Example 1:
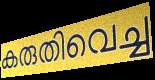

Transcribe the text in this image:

കരുതിവെച്ച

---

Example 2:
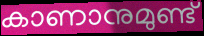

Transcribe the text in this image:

കാണാനുമുണ്ട്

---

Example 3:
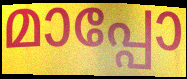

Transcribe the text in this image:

മാപ്പോ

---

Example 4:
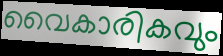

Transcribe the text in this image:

വൈകാരികവും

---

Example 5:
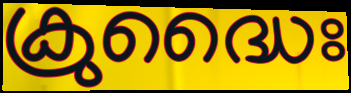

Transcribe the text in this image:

ക്രുദ്ധൈഃ